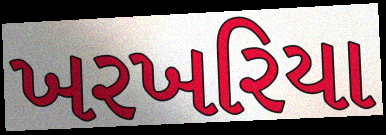
ખરખરિયા